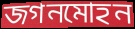
জগনমোহন